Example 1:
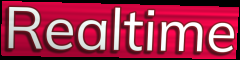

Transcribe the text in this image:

Realtime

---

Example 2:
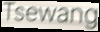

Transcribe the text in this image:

Tsewang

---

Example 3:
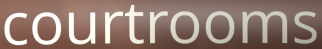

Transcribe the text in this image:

courtrooms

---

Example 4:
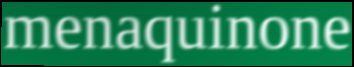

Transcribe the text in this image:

menaquinone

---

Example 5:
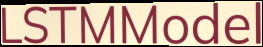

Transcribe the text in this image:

LSTMModel